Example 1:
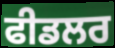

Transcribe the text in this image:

ਫੀਡਲਰ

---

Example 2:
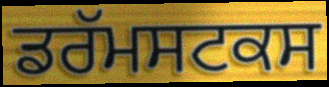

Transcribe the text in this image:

ਡਰੱਮਸਟਕਸ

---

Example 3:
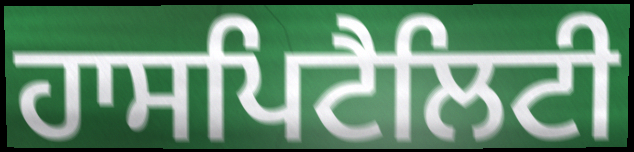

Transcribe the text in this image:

ਹਾਸਪਿਟੈਲਿਟੀ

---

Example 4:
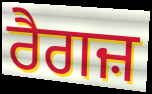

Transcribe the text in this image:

ਰੈਗਜ਼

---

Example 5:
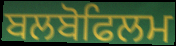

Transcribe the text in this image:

ਬਲਬੋਫਿਲਮ